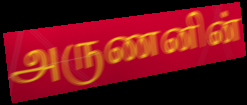
அருணனின்